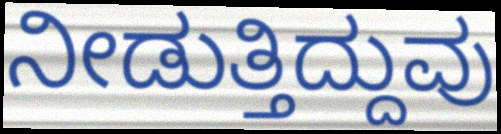
ನೀಡುತ್ತಿದ್ದುವು